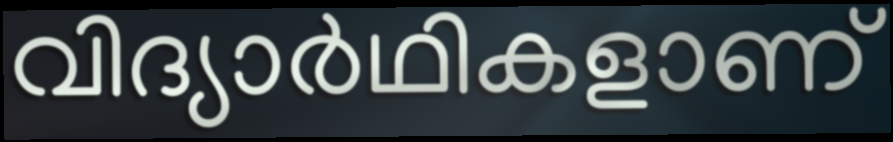
വിദ്യാർഥികളാണ്